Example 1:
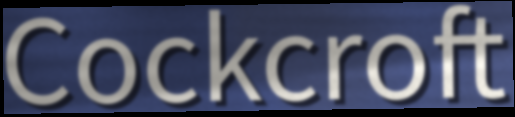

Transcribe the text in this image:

Cockcroft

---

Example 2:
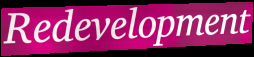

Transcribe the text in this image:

Redevelopment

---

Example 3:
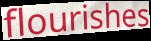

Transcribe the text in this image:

flourishes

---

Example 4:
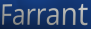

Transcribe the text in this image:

Farrant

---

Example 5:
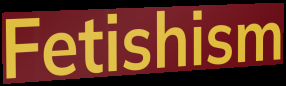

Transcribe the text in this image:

Fetishism